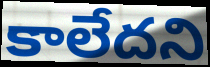
కాలేదని